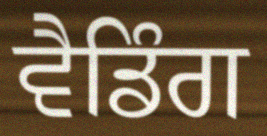
ਵੈਡਿੰਗ